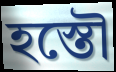
হস্তৌ